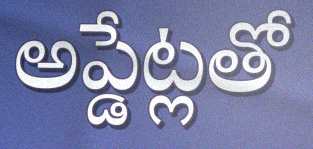
అప్డేట్లతో